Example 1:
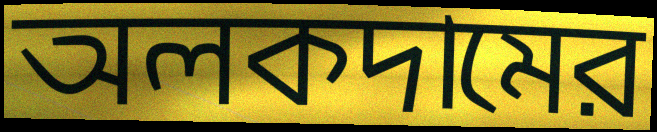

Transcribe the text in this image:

অলকদামের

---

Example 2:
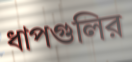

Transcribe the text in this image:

ধাপগুলির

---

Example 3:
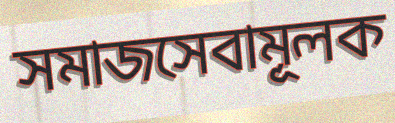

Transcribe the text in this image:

সমাজসেবামূলক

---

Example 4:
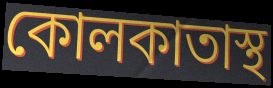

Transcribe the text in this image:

কোলকাতাস্থ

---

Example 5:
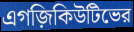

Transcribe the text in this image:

এগজ়িকিউটিভের